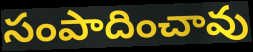
సంపాదించావు